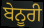
ਬੇਨੂਰੀ